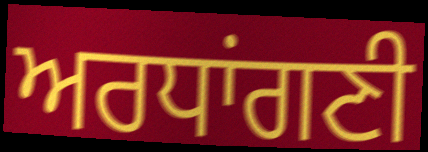
ਅਰਧਾਂਗਣੀ